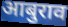
आबुराव